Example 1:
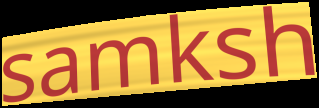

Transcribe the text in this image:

samksh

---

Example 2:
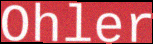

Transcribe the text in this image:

Ohler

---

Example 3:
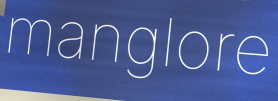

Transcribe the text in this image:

manglore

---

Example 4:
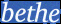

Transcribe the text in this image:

bethe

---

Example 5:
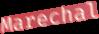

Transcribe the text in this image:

Marechal